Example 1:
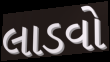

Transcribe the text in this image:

લાડવો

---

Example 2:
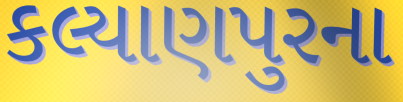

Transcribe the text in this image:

કલ્યાણપુરના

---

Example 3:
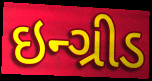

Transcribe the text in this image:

ઇન્ગ્રીડ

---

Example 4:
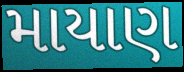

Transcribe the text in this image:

માયાણ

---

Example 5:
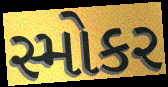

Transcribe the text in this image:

સ્મોકર